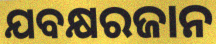
ଯବକ୍ଷରଜାନ